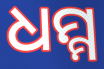
ଧମ୍ମ